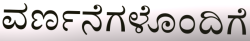
ವರ್ಣನೆಗಳೊಂದಿಗೆ